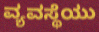
ವ್ಯವಸ್ಥೆಯು